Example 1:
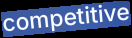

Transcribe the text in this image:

competitive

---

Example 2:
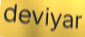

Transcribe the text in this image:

deviyar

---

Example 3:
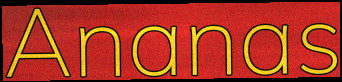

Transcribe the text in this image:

Ananas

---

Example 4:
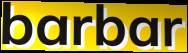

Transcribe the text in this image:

barbar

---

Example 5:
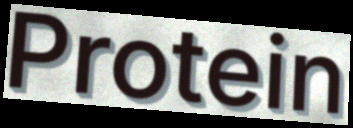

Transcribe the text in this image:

Protein